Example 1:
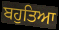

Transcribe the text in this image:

ਬਹੁਤਿਆ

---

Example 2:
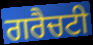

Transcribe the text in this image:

ਗਰੈਚਟੀ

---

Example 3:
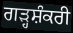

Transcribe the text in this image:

ਗੜ੍ਹਸ਼ੰਕਰੀ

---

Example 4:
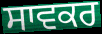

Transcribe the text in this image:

ਸਾਵਕਰ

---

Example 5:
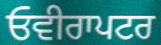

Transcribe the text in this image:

ਓਵੀਰਾਪਟਰ